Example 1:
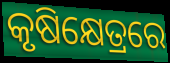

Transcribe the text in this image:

କୃଷିକ୍ଷେତ୍ରରେ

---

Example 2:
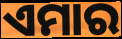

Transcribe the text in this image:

ଏମାର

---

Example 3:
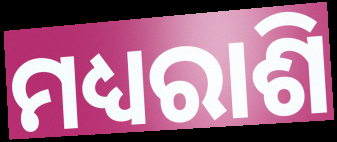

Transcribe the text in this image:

ମଧ୍ୟରାଶି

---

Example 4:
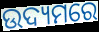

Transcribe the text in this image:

ଉଦ୍ୟମରେ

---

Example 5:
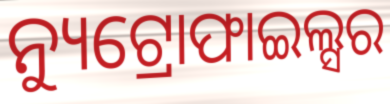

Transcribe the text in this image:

ନ୍ୟୁଟ୍ରୋଫାଇଲ୍ସର